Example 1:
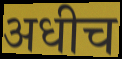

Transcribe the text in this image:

अधीच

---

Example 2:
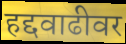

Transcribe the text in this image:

हद्दवाढीवर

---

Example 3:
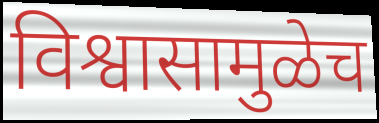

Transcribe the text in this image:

विश्वासामुळेच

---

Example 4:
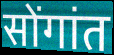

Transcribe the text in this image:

सोंगांत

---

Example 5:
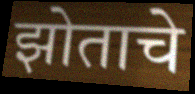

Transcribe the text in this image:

झोताचे